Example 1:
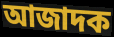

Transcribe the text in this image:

আজাদক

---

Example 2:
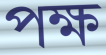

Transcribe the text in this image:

পক্ষ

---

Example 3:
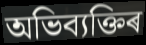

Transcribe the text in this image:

অভিব্যক্তিৰ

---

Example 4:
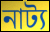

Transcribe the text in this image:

নাট্য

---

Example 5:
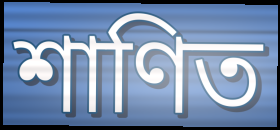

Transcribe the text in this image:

শাণিত